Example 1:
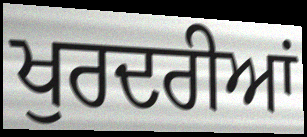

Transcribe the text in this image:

ਖੁਰਦਰੀਆਂ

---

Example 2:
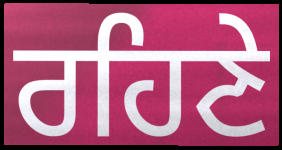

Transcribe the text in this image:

ਰਹਿਣੇ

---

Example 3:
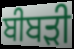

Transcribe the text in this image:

ਬੀਬੜੀ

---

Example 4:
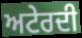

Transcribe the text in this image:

ਅਟੇਰਦੀ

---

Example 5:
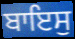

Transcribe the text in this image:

ਬਾਇਸੁ